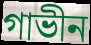
গাভীন